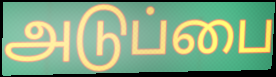
அடுப்பை